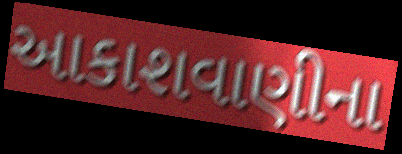
આકાશવાણીના